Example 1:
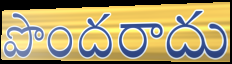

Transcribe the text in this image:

పొందరాదు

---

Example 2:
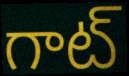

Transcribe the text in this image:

గాట్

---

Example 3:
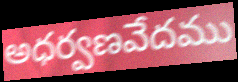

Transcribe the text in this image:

అధర్వణవేదము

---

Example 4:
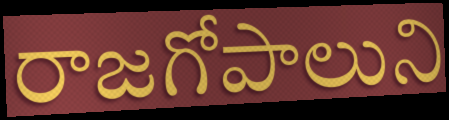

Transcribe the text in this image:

రాజగోపాలుని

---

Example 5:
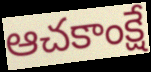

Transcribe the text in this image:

ఆచకాంక్షే